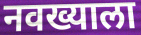
नवख्याला